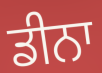
ਡੀਨਾ